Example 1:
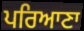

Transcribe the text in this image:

ਪਰਿਆਣਾ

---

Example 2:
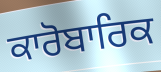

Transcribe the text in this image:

ਕਾਰੋਬਾਰਿਕ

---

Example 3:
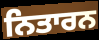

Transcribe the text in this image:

ਨਿਤਾਰਨ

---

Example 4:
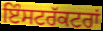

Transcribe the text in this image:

ਇੰਸਟਰੱਕਟਰਾਂ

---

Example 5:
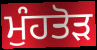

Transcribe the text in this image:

ਮੁੰਹਤੋੜ